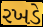
રખડે